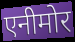
एनीमोर